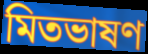
মিতভাষণ